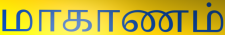
மாகாணம்